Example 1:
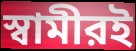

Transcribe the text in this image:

স্বামীরই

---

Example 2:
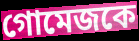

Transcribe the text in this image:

গোমেজকে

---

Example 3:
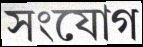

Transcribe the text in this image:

সংযোগ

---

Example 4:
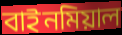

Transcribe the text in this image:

বাইনমিয়াল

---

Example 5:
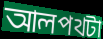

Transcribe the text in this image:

আলপথটা